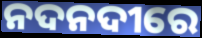
ନଦନଦୀରେ